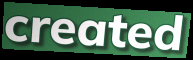
created